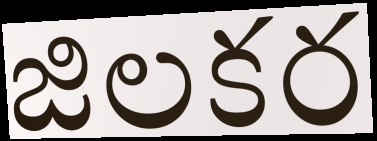
జిలకర